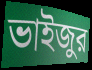
ভাইজুর